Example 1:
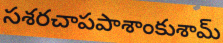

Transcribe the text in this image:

సశరచాపపాశాంకుశామ్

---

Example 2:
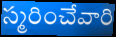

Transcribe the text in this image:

స్మరించేవారి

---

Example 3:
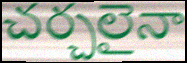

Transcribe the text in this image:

చర్చలైనా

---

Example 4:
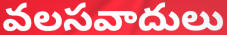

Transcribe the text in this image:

వలసవాదులు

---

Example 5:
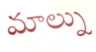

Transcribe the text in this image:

మాల్ను